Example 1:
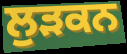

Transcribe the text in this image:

ਲੁੜਕਨ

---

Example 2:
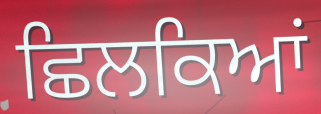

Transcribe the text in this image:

ਛਿਲਕਿਆਂ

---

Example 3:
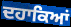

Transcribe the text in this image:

ਦਹਾਕਿਆਂ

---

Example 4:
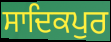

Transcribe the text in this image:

ਸਾਦਿਕਪੁਰ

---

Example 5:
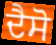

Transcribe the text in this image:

ਦੈਸੋ